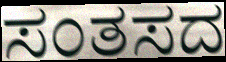
ಸಂತಸದ